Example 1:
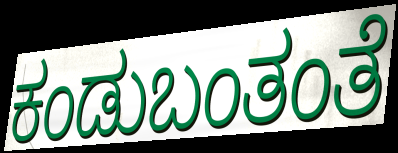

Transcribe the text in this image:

ಕಂಡುಬಂತಂತೆ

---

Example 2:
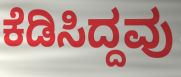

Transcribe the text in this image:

ಕೆಡಿಸಿದ್ದವು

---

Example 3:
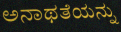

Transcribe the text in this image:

ಅನಾಥತೆಯನ್ನು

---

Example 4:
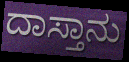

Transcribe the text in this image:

ದಾಸ್ತಾನು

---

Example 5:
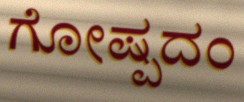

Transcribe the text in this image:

ಗೋಷ್ಪದಂ